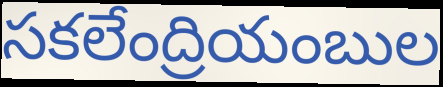
సకలేంద్రియంబుల